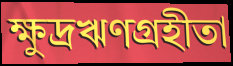
ক্ষুদ্রঋণগ্রহীতা